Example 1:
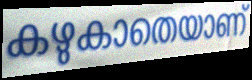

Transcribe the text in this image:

കഴുകാതെയാണ്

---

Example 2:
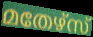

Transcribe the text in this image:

മതേഴ്സ്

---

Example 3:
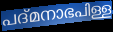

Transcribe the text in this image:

പദ്മനാഭപിള്ള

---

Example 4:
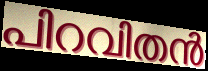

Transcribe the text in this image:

പിറവിതൻ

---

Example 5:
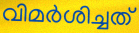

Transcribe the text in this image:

വിമർശിച്ചത്